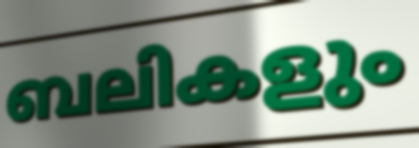
ബലികളും